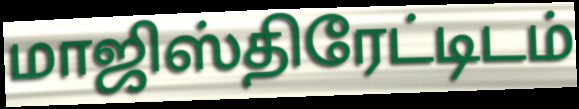
மாஜிஸ்திரேட்டிடம்